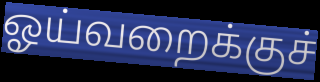
ஓய்வறைக்குச்